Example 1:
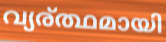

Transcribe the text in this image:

വ്യര്ത്ഥമായി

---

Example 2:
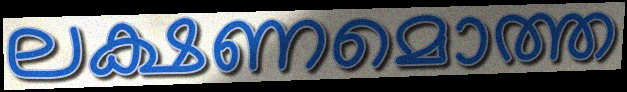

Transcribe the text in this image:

ലക്ഷണമൊത്ത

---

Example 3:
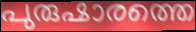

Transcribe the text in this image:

പുരുഷാരത്തെ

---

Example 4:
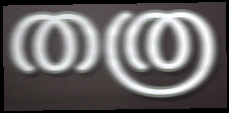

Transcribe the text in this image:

തത്ര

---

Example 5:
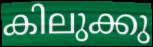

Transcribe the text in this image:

കിലുക്കു